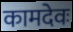
कामदेवः